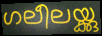
ഗലീലയ്ക്കു